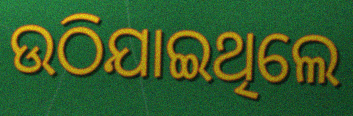
ଉଠିଯାଇଥିଲେ